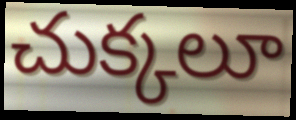
చుక్కలూ